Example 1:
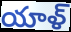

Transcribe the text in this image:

యాళ్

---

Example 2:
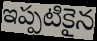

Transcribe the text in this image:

ఇప్పటికైన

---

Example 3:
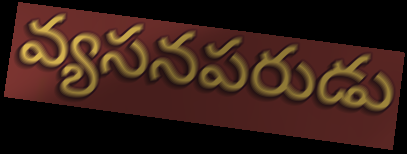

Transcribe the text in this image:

వ్యసనపరుడు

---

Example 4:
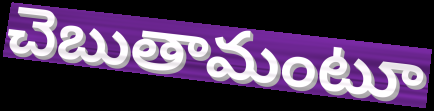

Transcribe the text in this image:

చెబుతామంటూ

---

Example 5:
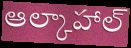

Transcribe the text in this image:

ఆల్కాహాల్